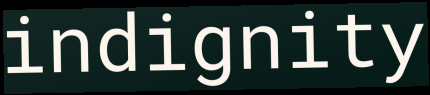
indignity